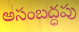
అసంబద్ధపు